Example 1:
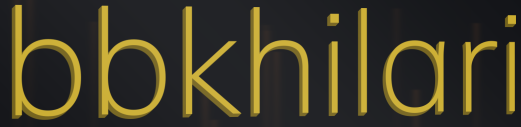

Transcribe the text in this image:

bbkhilari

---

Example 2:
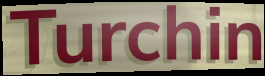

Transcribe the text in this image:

Turchin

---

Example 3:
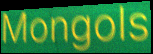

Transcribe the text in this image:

Mongols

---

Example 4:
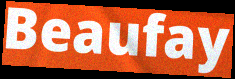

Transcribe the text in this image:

Beaufay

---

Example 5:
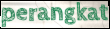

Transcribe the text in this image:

perangkat